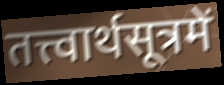
तत्त्वार्थसूत्रमें